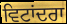
ਵਿਟਾਂਦਰਾ